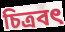
চিত্ৰবৎ